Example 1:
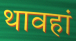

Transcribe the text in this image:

थावहां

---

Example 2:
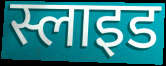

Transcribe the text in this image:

स्‍लाइड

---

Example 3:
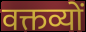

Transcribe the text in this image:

वक्तव्यों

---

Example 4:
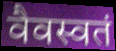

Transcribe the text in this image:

वैवस्वतं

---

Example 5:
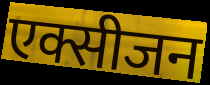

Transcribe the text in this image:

एक्सीजन